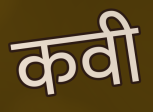
कवी